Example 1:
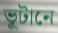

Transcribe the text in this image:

ভূটানে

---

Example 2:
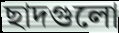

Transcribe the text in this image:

ছাদগুলো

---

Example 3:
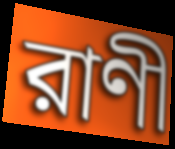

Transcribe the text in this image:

রাণী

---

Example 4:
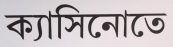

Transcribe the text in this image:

ক্যাসিনোতে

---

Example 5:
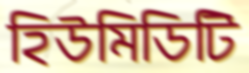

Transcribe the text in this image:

হিউমিডিটি